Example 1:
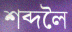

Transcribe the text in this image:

শব্দলৈ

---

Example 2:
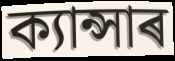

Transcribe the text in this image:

ক্যান্সাৰ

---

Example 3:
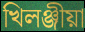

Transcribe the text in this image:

খিলঞ্জীয়া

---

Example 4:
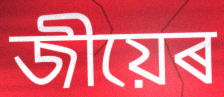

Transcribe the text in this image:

জীয়েৰ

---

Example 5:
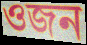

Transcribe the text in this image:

ওজন